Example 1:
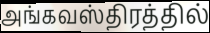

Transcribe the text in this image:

அங்கவஸ்திரத்தில்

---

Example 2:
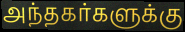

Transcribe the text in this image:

அந்தகர்களுக்கு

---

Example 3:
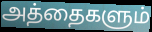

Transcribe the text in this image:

அத்தைகளும்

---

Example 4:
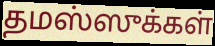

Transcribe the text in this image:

தமஸ்ஸுக்கள்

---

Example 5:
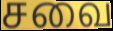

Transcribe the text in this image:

சவை